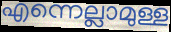
എന്നെല്ലാമുള്ള